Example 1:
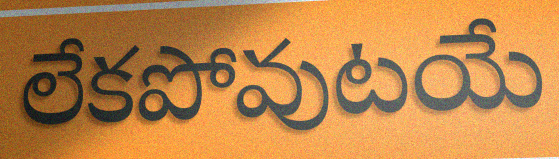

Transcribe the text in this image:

లేకపోవుటయే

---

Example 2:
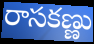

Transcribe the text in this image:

రాసకణ్ణు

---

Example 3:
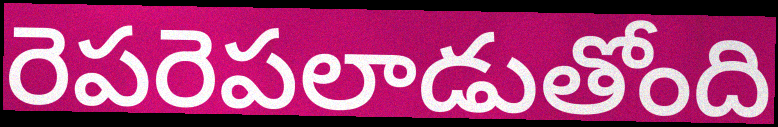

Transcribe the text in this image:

రెపరెపలాడుతోంది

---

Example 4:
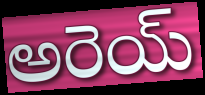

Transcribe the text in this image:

అరెయ్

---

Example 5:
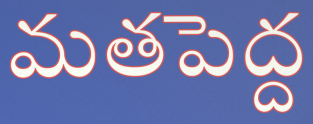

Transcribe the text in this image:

మతపెద్ద